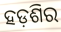
ହଡ଼ଶିର